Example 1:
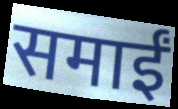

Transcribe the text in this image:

समाईं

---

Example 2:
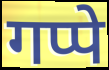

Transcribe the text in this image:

गप्पे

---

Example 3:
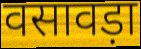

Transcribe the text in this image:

वसावड़ा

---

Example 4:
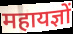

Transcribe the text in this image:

महायज्ञों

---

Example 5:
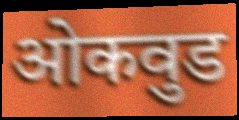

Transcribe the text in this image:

ओकवुड